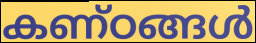
കണ്ഠങ്ങൾ